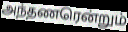
அந்தணரென்றும்